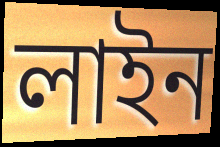
লাইন